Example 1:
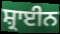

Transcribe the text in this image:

ਸ਼੍ਰਾਈਨ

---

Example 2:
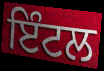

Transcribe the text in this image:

ਇੰਟਲ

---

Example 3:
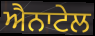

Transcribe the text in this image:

ਐਨਾਟੇਲ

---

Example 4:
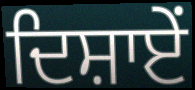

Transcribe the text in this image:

ਦਿਸ਼ਾਏਂ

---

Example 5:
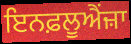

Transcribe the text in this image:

ਇਨਫ਼ਲੂਐਂਜ਼ਾ